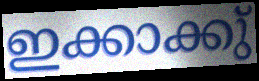
ഇക്കാക്കു്